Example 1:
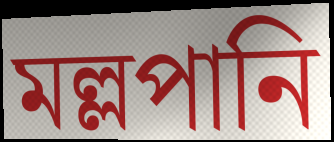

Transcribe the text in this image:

মল্লপানি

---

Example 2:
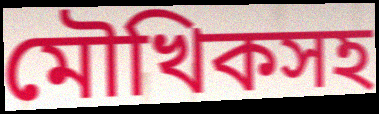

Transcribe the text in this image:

মৌখিকসহ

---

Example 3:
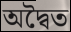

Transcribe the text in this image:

অদ্বৈত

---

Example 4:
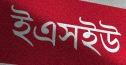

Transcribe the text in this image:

ইএসইউ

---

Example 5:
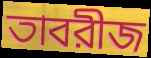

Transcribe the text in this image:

তাবরীজ